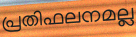
പ്രതിഫലനമല്ല